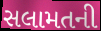
સલામતની